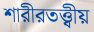
শারীরতত্ত্বীয়